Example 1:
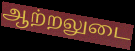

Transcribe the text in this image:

ஆற்றலுடை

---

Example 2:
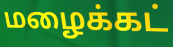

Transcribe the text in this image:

மழைக்கட்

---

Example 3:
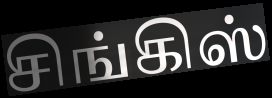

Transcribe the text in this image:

சிங்கிஸ்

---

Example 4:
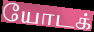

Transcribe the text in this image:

யோடக்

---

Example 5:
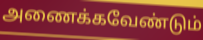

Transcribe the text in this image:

அணைக்கவேண்டும்